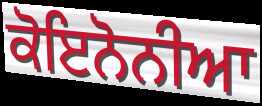
ਕੋਇਨੋਨੀਆ